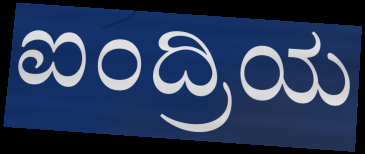
ಐಂದ್ರಿಯ